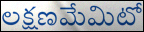
లక్షణమేమిటో